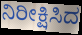
ನಿರೀಕ್ಷಿಸಿದ